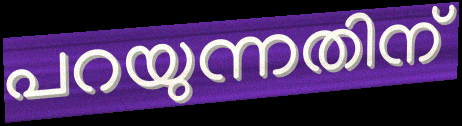
പറയുന്നതിന്